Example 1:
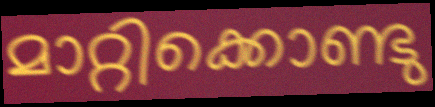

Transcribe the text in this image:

മാറ്റിക്കൊണ്ടു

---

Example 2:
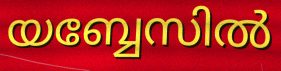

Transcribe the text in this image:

യബ്ബേസിൽ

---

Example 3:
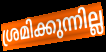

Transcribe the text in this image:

ശ്രമിക്കുന്നില്ല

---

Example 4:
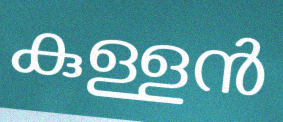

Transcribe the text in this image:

കുള്ളൻ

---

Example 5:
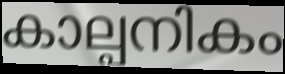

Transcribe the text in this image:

കാല്പനികം